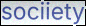
sociiety